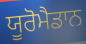
ਯੂਰੋਮੈਡਾਨ